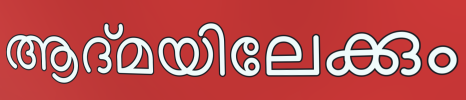
ആദ്മയിലേക്കും